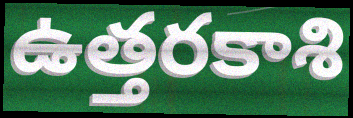
ఉత్తరకాశి